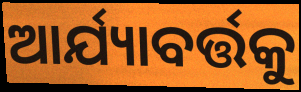
ଆର୍ଯ୍ୟାବର୍ତ୍ତକୁ